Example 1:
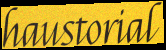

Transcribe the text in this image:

haustorial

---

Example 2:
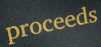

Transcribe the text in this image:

proceeds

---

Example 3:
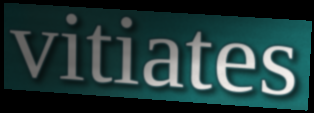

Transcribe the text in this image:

vitiates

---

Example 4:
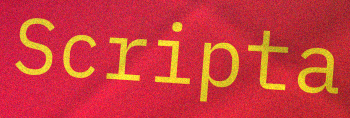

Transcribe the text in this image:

Scripta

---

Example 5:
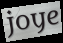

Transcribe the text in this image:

joye